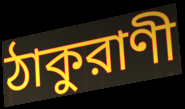
ঠাকুরাণী